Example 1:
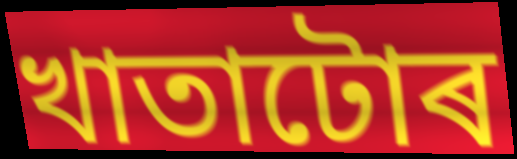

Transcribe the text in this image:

খাতাটোৰ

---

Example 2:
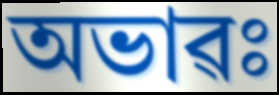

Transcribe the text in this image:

অভাৱঃ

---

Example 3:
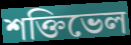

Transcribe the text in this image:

শক্তিভেল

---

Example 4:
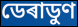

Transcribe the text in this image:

ডেৰাডুণ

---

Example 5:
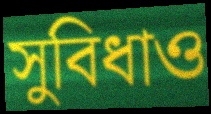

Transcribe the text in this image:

সুবিধাও